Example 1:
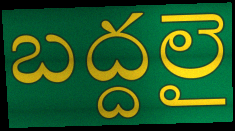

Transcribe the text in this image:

బద్దలై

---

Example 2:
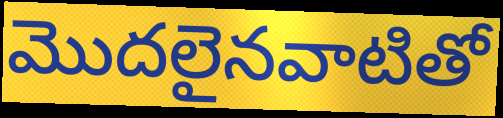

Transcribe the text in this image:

మొదలైనవాటితో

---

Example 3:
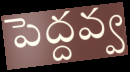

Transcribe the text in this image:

పెద్దవ్వ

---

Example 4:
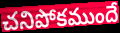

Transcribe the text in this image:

చనిపోకముందే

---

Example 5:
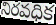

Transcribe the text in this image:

నిరవధిక